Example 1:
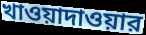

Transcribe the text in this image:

খাওয়াদাওয়ার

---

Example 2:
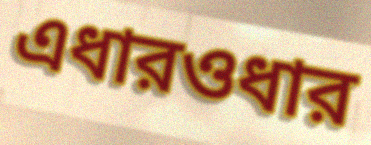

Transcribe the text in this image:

এধারওধার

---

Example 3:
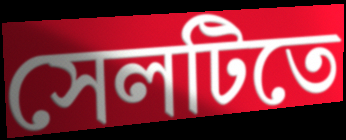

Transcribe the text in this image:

সেলটিতে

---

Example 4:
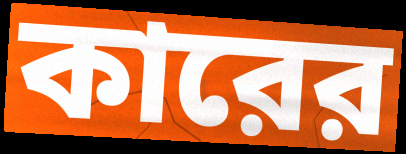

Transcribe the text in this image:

কারের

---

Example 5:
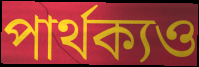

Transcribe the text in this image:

পার্থক্যও